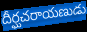
దీర్ఘచరాయణుడు